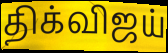
திக்விஜய்